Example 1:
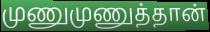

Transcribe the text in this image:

முணுமுணுத்தான்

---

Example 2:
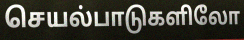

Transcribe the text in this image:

செயல்பாடுகளிலோ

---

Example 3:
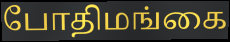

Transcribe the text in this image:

போதிமங்கை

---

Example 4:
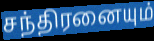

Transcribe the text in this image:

சந்திரனையும்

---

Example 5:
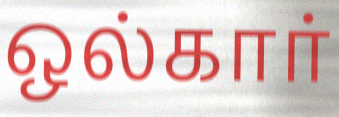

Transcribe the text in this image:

ஒல்கார்